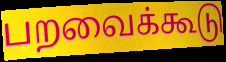
பறவைக்கூடு